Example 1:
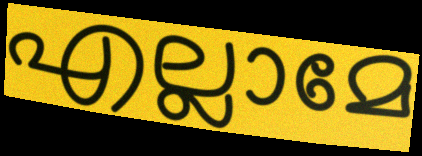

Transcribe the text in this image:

എല്ലാമേ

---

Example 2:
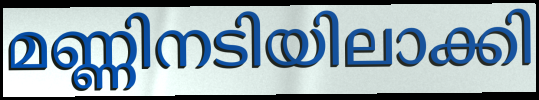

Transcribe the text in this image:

മണ്ണിനടിയിലാക്കി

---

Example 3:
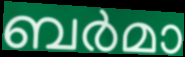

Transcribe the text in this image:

ബർമാ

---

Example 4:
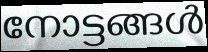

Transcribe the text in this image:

നോട്ടങ്ങൾ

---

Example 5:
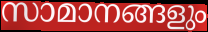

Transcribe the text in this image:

സാമാനങ്ങളും